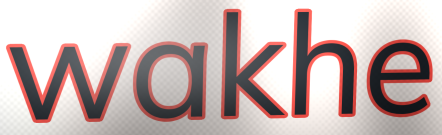
wakhe